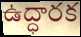
ఉద్ధారక